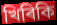
খিৰিকি